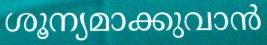
ശൂന്യമാക്കുവാൻ